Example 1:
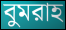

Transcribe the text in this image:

বুমরাহ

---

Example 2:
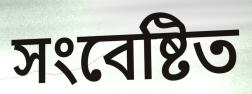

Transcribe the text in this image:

সংবেষ্টিত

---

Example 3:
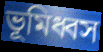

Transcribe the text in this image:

ভূমিধ্বস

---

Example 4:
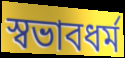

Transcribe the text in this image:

স্বভাবধর্ম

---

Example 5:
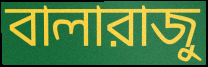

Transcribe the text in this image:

বালারাজু